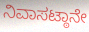
ನಿವಾಸಟ್ಠಾನೇ